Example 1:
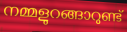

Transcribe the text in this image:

നമ്മളുറങ്ങാറുണ്ട്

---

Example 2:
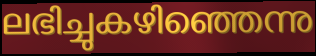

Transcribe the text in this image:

ലഭിച്ചുകഴിഞ്ഞെന്നു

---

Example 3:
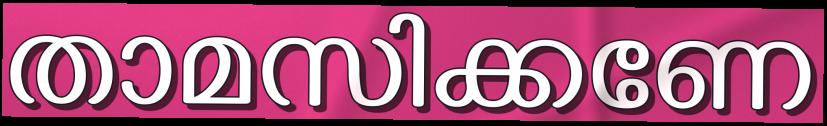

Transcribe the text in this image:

താമസിക്കണേ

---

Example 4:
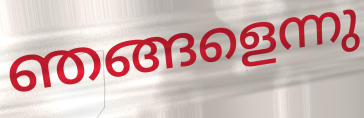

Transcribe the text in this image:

ഞങ്ങളെന്നു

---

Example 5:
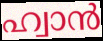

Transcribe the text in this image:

ഹ്വാൻ